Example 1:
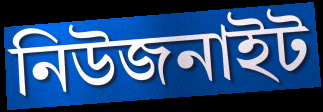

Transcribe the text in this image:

নিউজনাইট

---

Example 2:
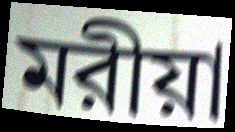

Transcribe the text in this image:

মরীয়া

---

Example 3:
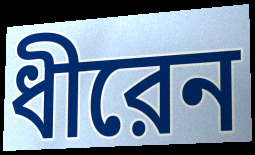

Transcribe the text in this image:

ধীরেন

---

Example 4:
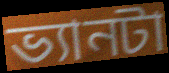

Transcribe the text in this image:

ভ্যানটা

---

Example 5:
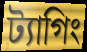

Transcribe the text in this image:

ট্যাগিং